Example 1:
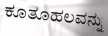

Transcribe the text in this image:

ಕೂತೂಹಲವನ್ನು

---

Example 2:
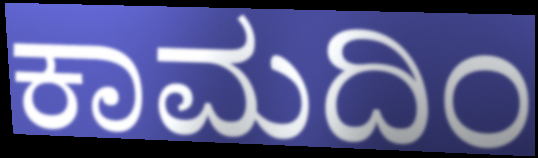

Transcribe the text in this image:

ಕಾಮದಿಂ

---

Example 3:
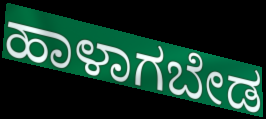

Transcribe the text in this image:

ಹಾಳಾಗಬೇಡ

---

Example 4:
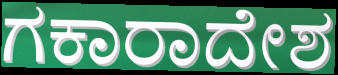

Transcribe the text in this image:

ಗಕಾರಾದೇಶ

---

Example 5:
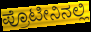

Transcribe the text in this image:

ಪ್ರೊಟೀನಿನಲ್ಲಿ